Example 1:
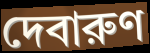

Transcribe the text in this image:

দেবারুণ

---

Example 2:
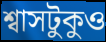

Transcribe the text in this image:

শ্বাসটুকুও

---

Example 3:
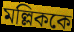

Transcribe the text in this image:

মল্লিককে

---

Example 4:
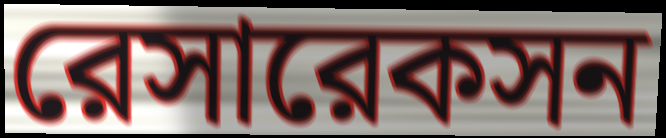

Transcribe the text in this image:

রেসারেকসন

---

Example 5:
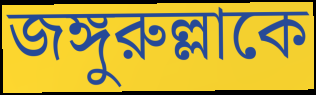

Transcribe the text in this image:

জঙ্গুরুল্লাকে